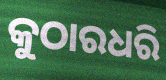
କୁଠାରଧରି